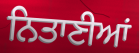
ਨਿਤਾਣੀਆਂ